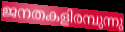
ജനതകളിരമ്പുന്നു